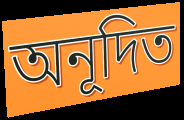
অনূদিত